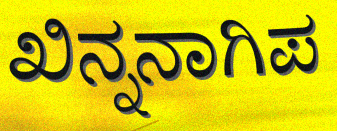
ಖಿನ್ನನಾಗಿಪ